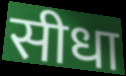
सीधा